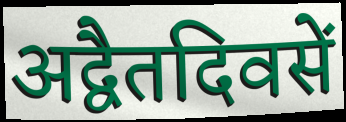
अद्वैतदिवसें